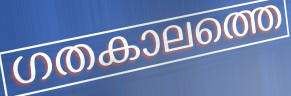
ഗതകാലത്തെ